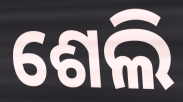
ଶେଲି